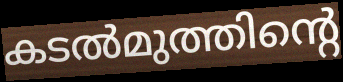
കടൽമുത്തിന്റെ